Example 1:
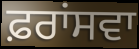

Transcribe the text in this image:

ਫ਼ਰਾਂਸਵਾ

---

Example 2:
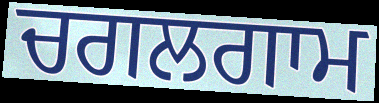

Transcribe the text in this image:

ਚਗਲਗਾਮ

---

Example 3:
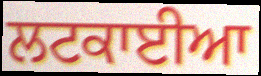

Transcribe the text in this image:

ਲਟਕਾਈਆ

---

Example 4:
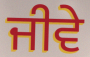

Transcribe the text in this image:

ਜੀਵੇ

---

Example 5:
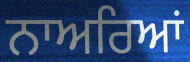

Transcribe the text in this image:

ਨਾਅਰਿਆਂ